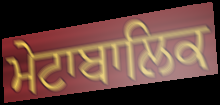
ਮੇਟਾਬਾਲਿਕ